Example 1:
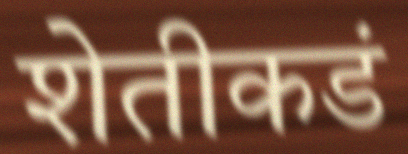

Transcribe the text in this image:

शेतीकडं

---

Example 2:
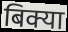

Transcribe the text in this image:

बिक्या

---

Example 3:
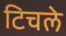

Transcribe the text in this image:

टिचले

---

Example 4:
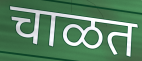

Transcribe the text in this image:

चाळत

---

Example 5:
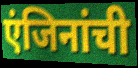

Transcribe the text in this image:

एंजिनांची